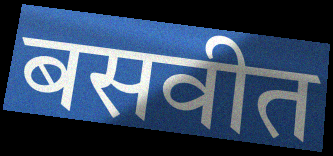
बसवीत